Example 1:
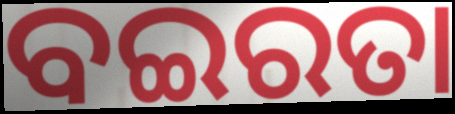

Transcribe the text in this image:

ବଇରତା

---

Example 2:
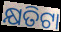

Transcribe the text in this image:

କ୍ଷତିଟା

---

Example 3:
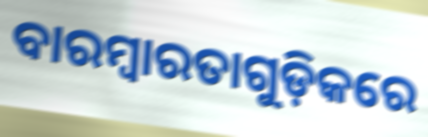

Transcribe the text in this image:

ବାରମ୍ବାରତାଗୁଡ଼ିକରେ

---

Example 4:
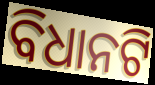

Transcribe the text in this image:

ବିଧାନଟି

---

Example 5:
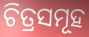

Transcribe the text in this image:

ଚିତ୍ରସମୂହ